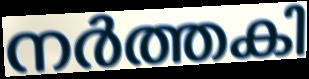
നർത്തകി